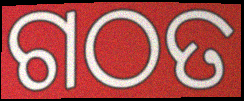
ଗଠତ